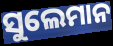
ସୁଲେମାନ